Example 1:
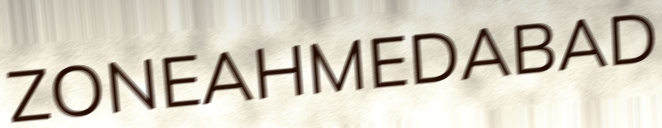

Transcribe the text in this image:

ZONEAHMEDABAD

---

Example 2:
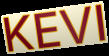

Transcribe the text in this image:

KEVI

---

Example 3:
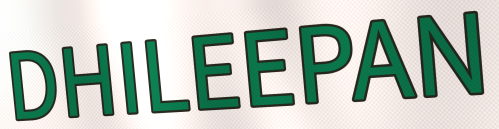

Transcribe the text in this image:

DHILEEPAN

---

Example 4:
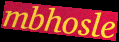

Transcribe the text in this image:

mbhosle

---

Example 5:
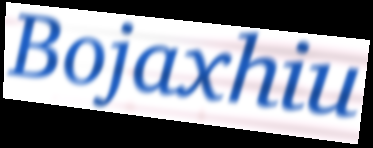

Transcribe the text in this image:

Bojaxhiu